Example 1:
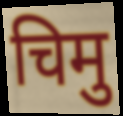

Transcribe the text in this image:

चिमु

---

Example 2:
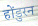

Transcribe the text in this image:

होंडुरन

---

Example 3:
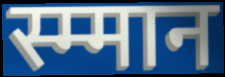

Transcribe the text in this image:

स्म्मान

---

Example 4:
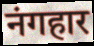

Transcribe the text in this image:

नंगहार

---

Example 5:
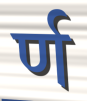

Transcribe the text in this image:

र्ण